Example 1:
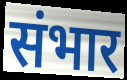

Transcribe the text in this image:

संभार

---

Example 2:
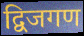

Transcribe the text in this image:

द्विजगण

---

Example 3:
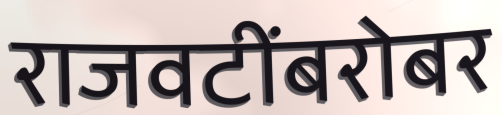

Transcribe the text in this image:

राजवटींबरोबर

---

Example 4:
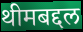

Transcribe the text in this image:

थीमबद्दल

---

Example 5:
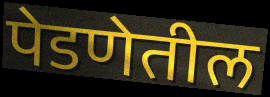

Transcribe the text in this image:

पेडणेतील